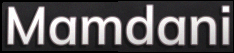
Mamdani